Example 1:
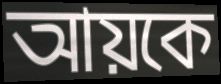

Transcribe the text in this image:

আয়কে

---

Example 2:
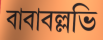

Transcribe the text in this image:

বাবাবল্লভি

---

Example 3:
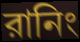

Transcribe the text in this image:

রানিং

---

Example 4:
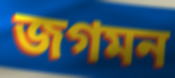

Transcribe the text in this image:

জগমন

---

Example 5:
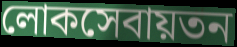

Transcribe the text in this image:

লোকসেবায়তন